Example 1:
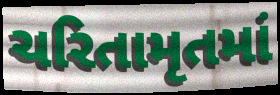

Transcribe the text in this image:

ચરિતામૃતમાં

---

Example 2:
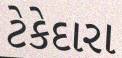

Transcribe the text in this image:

ટેકેદારા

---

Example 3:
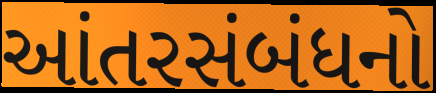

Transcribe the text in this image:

આંતરસંબંધનો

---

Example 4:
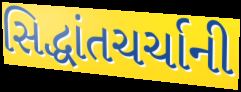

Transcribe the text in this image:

સિદ્ધાંતચર્ચાની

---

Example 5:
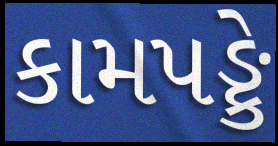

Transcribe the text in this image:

કામપઙ્કે